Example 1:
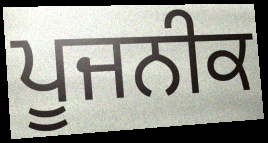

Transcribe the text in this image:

ਪੂਜਨੀਕ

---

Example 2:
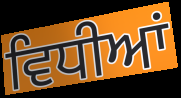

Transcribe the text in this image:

ਵਿਧੀਆਂ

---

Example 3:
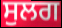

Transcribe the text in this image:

ਸੁਲਗ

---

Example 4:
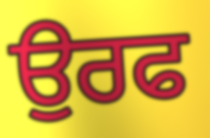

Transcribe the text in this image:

ਉਰਫ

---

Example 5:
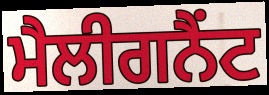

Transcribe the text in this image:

ਮੈਲੀਗਨੈਂਟ